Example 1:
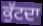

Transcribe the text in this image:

ਕੁੱਟਦਾ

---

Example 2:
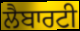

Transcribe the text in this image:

ਲੈਬਾਰਟੀ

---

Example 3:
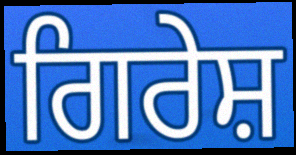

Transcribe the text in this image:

ਗਿਰੇਸ਼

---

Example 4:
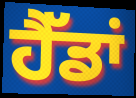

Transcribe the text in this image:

ਹੈੱਡਾਂ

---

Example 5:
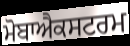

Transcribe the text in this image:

ਮੋਬਾਐਕਸਟਰਮ